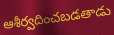
ఆశీర్వదించబడతాడు